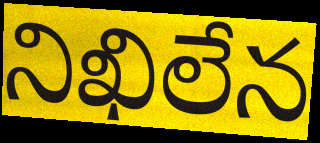
నిఖిలేన